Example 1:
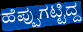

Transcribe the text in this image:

ಹೆಪ್ಪುಗಟ್ಟಿದ್ದ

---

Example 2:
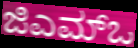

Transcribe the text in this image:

ಜಿಎಮ್ಒ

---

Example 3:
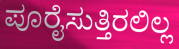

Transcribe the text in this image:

ಪೂರೈಸುತ್ತಿರಲಿಲ್ಲ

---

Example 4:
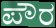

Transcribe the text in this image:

ಪೌರ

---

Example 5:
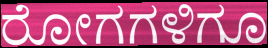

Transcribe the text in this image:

ರೋಗಗಳಿಗೂ